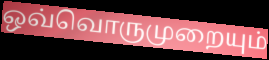
ஒவ்வொருமுறையும்